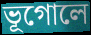
ভূগোলে